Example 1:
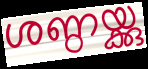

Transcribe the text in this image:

ശണ്ഠയ്ക്കു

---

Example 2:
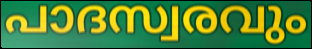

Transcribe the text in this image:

പാദസ്വരവും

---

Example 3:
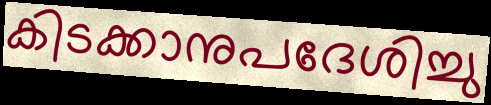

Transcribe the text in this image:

കിടക്കാനുപദേശിച്ചു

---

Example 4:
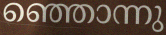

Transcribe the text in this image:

ഞ്ഞൊന്നു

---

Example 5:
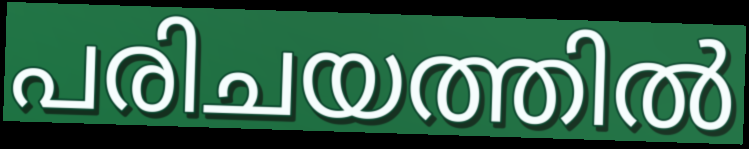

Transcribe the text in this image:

പരിചയത്തിൽ